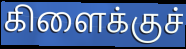
கிளைக்குச்